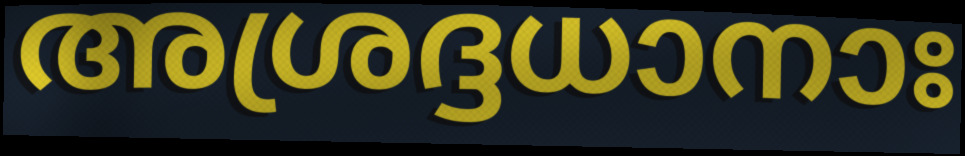
അശ്രദ്ദധാനാഃ